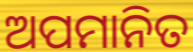
ଅପମାନିତ